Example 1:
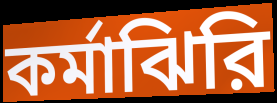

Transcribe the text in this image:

কর্মাঝিরি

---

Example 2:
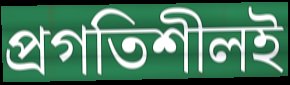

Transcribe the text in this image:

প্রগতিশীলই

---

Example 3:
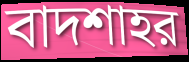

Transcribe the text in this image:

বাদশাহর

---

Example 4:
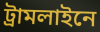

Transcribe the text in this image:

ট্রামলাইনে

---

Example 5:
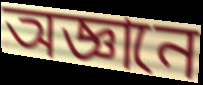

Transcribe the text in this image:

অজ্ঞানে